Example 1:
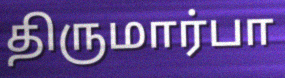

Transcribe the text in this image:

திருமார்பா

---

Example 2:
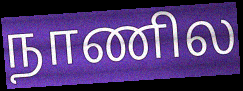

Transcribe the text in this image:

நாணில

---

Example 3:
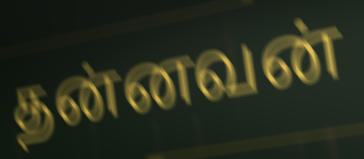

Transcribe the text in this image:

தன்னவன்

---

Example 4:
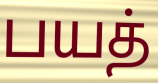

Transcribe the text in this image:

பயத்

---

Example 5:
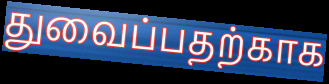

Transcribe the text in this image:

துவைப்பதற்காக